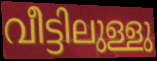
വീട്ടിലുള്ളു